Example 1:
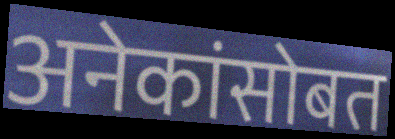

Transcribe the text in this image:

अनेकांसोबत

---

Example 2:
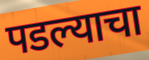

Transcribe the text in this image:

पडल्याचा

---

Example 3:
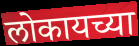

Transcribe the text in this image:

लोकायच्या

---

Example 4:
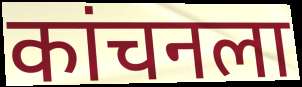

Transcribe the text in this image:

कांचनला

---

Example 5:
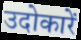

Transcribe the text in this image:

उदोकारें